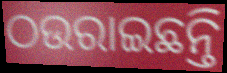
ଠଉରାଇଛନ୍ତି